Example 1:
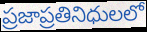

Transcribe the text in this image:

ప్రజాప్రతినిధులలో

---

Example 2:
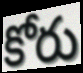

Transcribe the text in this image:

కోరు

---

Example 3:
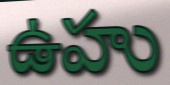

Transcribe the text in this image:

ఉహు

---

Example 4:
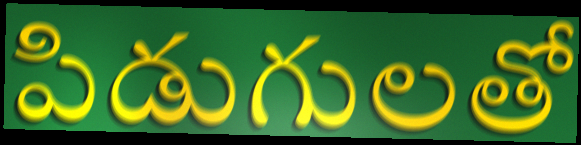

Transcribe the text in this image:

పిడుగులతో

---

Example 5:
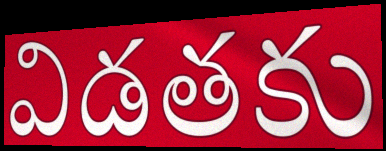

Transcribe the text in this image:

విడతకు